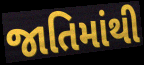
જાતિમાંથી